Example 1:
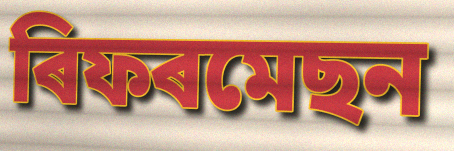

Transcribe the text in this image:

ৰিফৰমেছন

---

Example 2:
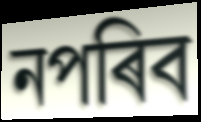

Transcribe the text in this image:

নপৰিব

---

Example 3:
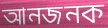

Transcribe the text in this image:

আনজনক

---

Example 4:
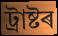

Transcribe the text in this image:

ট্ৰাষ্টৰ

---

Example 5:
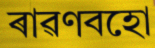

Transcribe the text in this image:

ৰাৱণবহো